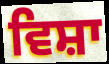
ਵਿਸ਼ਾ